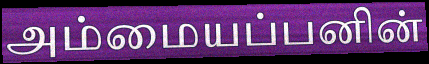
அம்மையப்பனின்